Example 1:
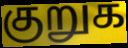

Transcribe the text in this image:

குறுக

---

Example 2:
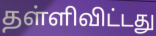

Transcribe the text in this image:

தள்ளிவிட்டது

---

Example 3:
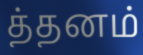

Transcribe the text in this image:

த்தனம்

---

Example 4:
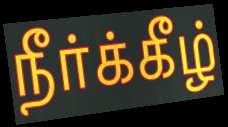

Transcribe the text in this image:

நீர்க்கீழ்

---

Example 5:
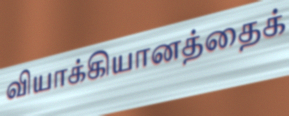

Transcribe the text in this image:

வியாக்கியானத்தைக்